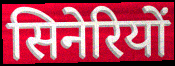
सिनेरियों